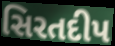
સિરતદીપ